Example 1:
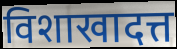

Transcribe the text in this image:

विशाखादत्त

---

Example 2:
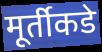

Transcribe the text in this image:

मूर्तीकडे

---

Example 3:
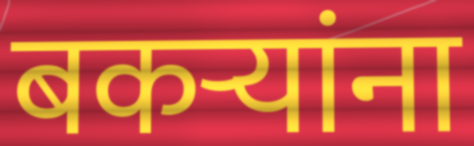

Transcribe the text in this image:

बकर्‍यांना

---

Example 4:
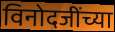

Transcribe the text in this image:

विनोदजींच्या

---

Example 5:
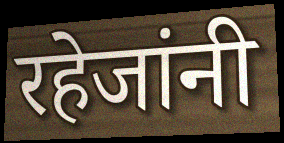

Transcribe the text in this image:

रहेजांनी